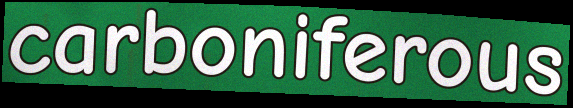
carboniferous